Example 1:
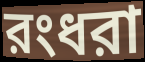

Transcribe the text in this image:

রংধরা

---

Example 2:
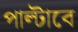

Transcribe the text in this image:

পাল্টাবে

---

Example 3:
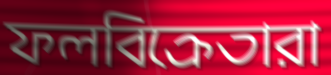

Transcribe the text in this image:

ফলবিক্রেতারা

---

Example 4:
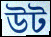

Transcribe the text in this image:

উট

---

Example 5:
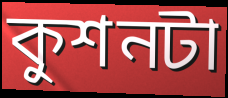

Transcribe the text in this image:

কুশনটা